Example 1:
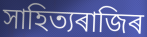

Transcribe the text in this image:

সাহিত্যৰাজিৰ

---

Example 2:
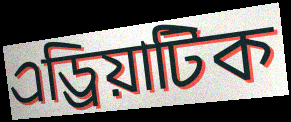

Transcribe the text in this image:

এড্ৰিয়াটিক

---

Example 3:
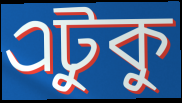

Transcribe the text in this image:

এটুকু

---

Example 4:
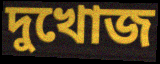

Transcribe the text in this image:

দুখোজ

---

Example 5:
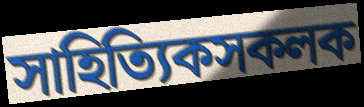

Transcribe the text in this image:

সাহিত্যিকসকলক